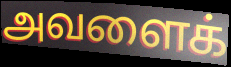
அவளைக்